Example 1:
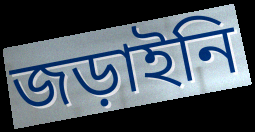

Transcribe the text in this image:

জড়াইনি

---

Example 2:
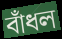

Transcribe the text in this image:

বাঁধল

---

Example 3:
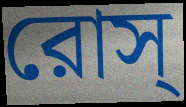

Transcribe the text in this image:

রোস্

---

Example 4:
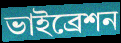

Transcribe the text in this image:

ভাইব্রেশন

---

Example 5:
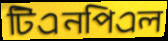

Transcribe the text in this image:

টিএনপিএল